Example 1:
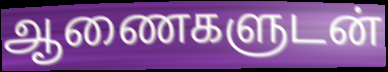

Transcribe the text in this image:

ஆணைகளுடன்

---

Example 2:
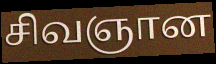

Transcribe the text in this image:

சிவஞான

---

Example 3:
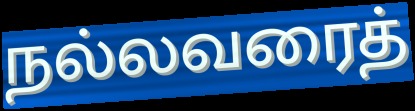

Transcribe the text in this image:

நல்லவரைத்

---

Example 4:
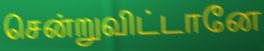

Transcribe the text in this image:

சென்றுவிட்டானே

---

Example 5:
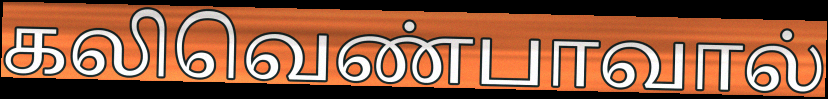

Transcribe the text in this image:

கலிவெண்பாவால்